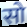
सो